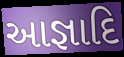
આજ્ઞાદિ